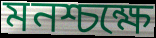
মনশ্চক্ষে